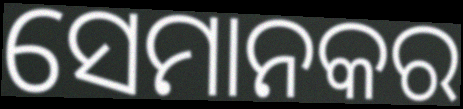
ସେମାନକର